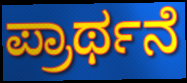
ಪ್ರಾರ್ಥನೆ